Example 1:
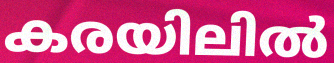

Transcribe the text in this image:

കരയിലിൽ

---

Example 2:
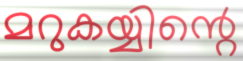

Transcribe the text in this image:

മറുകയ്യിന്റെ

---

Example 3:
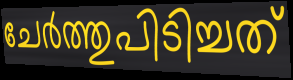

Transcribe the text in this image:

ചേർത്തുപിടിച്ചത്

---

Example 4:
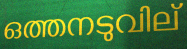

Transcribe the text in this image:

ഒത്തനടുവില്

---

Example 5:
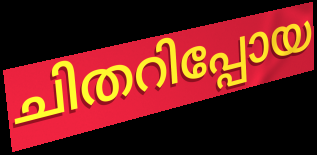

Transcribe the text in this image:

ചിതറിപ്പോയ